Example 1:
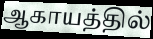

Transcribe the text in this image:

ஆகாயத்தில்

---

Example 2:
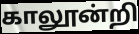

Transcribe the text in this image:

காலூன்றி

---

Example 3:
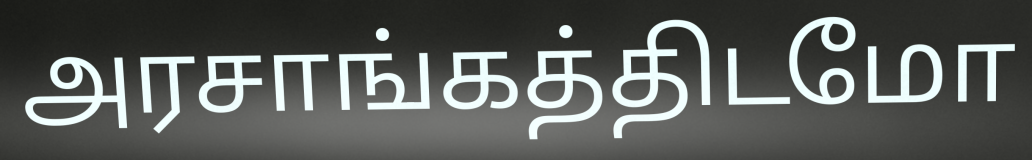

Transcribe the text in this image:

அரசாங்கத்திடமோ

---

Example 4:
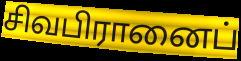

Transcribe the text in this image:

சிவபிரானைப்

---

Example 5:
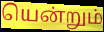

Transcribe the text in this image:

யென்றும்